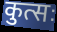
कुत्सः